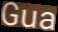
Gua